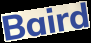
Baird